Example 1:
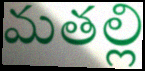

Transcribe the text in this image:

మతల్లి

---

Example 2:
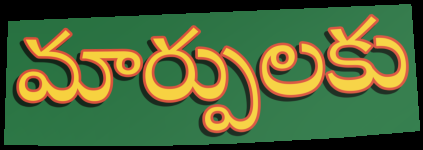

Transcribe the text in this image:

మార్పులకు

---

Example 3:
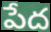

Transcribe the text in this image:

పేద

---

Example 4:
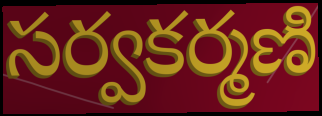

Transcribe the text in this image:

సర్వకర్మణి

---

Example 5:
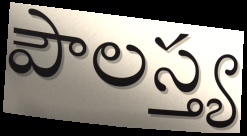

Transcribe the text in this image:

పౌలస్త్య